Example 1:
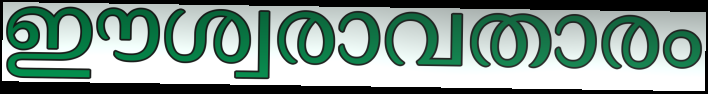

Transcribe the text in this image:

ഈശ്വരാവതാരം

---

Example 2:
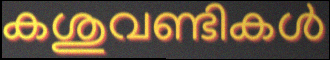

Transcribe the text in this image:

കശുവണ്ടികൾ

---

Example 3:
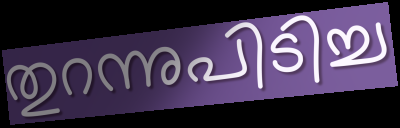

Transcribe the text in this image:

തുറന്നുപിടിച്ച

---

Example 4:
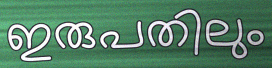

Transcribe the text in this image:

ഇരുപതിലും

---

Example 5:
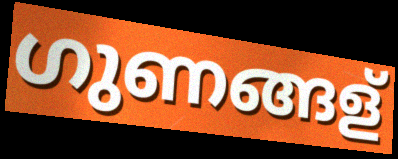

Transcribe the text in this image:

ഗുണങ്ങള്